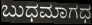
ಬುಧಮಾಗಧ